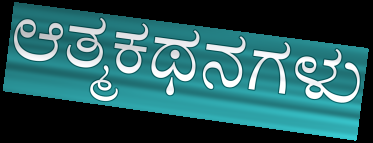
ಆತ್ಮಕಥನಗಳು